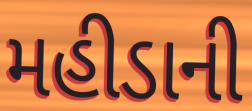
મહીડાની